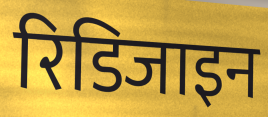
रिडिजाइन